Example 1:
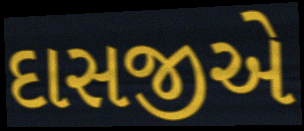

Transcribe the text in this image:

દાસજીએ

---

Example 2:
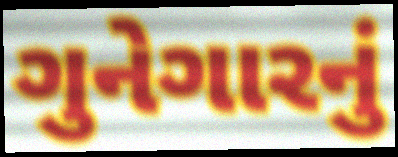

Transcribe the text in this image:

ગુનેગારનું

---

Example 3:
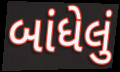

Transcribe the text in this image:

બાંધેલું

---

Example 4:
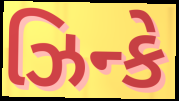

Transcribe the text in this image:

ઝિન્કે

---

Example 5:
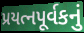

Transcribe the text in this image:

પ્રયત્નપૂર્વકનું